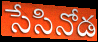
సేసినోడ